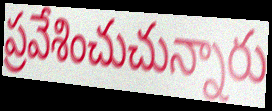
ప్రవేశించుచున్నారు